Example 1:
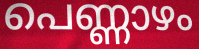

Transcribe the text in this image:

പെണ്ണാഴം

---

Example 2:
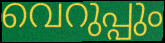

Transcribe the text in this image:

വെറുപ്പും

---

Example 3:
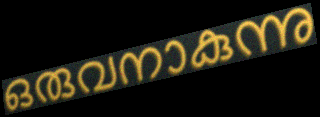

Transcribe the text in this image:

ഒരുവനാകുന്നു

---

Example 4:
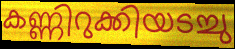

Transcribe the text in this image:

കണ്ണിറുക്കിയടച്ചു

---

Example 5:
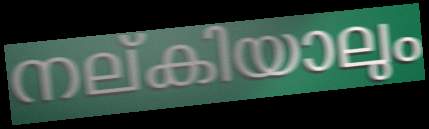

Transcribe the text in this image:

നല്‌കിയാലും